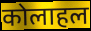
कोलाहल